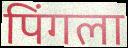
पिंगला